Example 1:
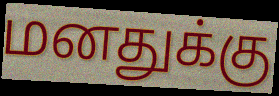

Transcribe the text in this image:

மனதுக்கு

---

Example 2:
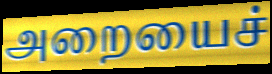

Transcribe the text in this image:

அறையைச்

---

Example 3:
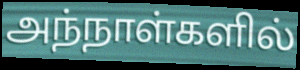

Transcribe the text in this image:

அந்நாள்களில்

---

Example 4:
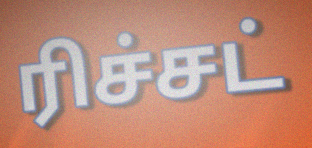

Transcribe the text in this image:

ரிச்சட்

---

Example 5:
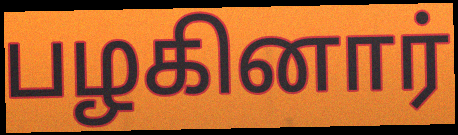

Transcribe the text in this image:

பழகினார்